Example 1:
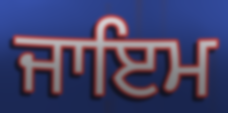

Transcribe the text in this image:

ਜਾਇਮ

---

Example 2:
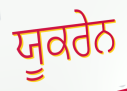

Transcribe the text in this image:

ਯੂਕਰੇਨ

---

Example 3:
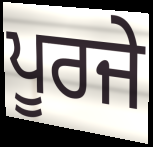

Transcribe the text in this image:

ਪੂਰਜੇ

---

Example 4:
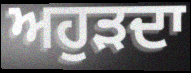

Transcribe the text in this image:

ਅਹੁੜਦਾ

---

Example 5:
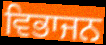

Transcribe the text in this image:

ਵਿਭਾਜਨ